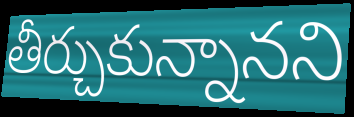
తీర్చుకున్నానని